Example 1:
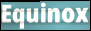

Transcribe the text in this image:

Equinox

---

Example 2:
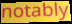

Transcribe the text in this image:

notably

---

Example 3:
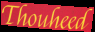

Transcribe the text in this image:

Thouheed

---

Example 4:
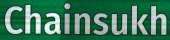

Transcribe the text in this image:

Chainsukh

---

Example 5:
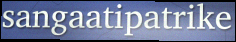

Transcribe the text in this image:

sangaatipatrike